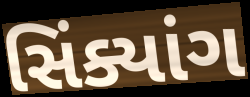
સિંક્યાંગ